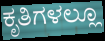
ಕೃತಿಗಳಲ್ಲೂ